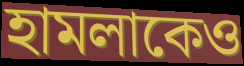
হামলাকেও